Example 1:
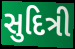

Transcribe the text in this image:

સુદિત્રી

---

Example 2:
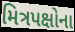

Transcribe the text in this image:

મિત્રપક્ષોના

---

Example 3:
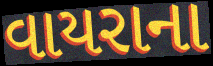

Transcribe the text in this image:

વાયરાના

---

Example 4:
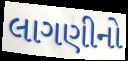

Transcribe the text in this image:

લાગણીનો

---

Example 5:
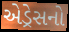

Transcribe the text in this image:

એડ્રેસનો